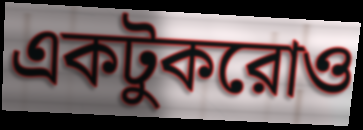
একটুকরোও